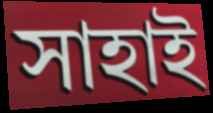
সাহাই